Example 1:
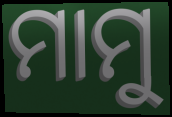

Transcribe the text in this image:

ମାମୁ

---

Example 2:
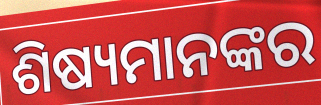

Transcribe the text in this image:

ଶିଷ୍ୟମାନଙ୍କର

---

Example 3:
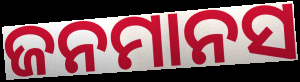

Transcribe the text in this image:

ଜନମାନସ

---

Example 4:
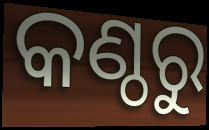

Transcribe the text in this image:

କଣ୍ଠରୁ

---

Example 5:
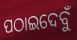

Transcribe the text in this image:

ପଠାଇଦେବୁଁ